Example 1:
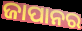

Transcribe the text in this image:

ଜାପାନର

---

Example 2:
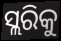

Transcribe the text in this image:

ସ୍ଲରିକୁ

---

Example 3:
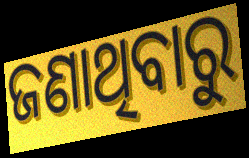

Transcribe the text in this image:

ଜଣାଥିବାରୁ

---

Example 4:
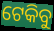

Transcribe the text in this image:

ଟେକିବୁ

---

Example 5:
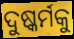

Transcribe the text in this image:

ଦୁଷ୍କର୍ମକୁ